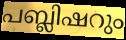
പബ്ലിഷറും